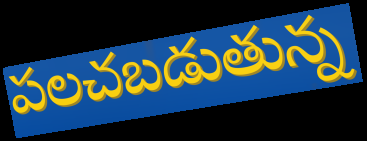
పలచబడుతున్న